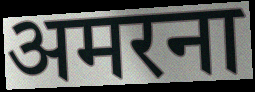
अमरना